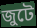
জুটে